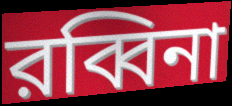
রব্বিনা